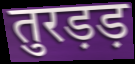
तुरड़ड़